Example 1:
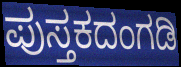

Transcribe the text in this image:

ಪುಸ್ತಕದಂಗಡಿ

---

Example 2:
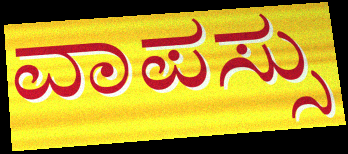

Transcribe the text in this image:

ವಾಪಸ್ಸು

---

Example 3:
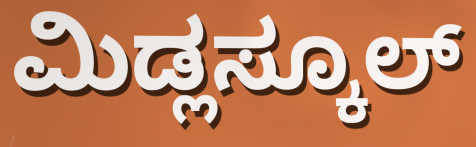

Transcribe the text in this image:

ಮಿಡ್ಲಸ್ಕೂಲ್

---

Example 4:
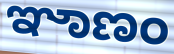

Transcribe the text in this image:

ಞಾಣಂ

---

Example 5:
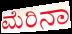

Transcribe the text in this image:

ಮೆರಿನಾ